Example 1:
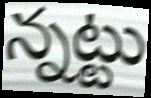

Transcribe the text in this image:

న్నట్టు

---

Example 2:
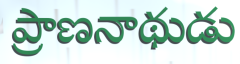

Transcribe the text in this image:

ప్రాణనాథుడు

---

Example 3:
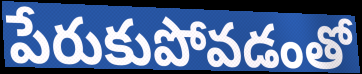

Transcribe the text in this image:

పేరుకుపోవడంతో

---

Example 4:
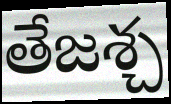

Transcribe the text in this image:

తేజశ్చ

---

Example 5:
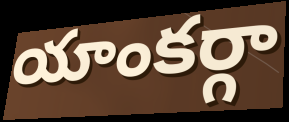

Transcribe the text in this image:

యాంకర్గా